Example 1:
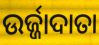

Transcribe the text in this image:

ଉର୍ଜ୍ଜାଦାତା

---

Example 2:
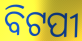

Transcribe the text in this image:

ବିଟପୀ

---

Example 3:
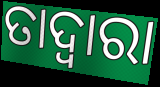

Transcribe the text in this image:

ତାଦ୍ଵାରା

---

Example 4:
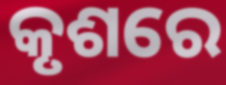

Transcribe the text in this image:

କୃଶରେ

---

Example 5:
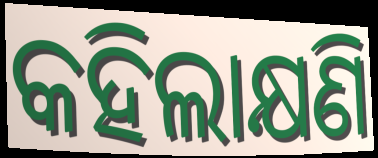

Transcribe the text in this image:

କହିଲାକ୍ଷଣି